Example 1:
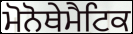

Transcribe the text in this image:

ਮੋਨੋਥੇਮੈਟਿਕ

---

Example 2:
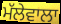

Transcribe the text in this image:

ਮੱਲੇਵਾਲਾ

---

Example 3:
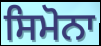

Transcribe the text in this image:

ਸਿਮੋਨਾ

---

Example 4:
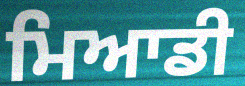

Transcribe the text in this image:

ਮਿਆਡੀ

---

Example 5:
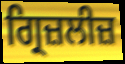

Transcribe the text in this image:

ਗ੍ਰਿਜ਼ਲੀਜ਼